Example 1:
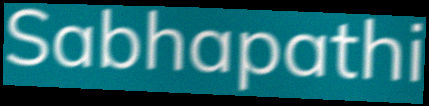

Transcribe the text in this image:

Sabhapathi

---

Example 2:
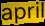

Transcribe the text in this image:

april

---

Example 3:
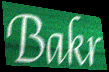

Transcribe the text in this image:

Bakr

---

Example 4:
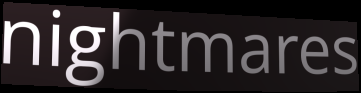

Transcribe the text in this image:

nightmares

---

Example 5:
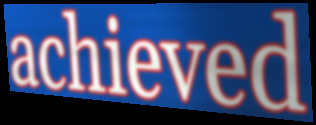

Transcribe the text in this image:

achieved